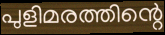
പുളിമരത്തിന്റെ